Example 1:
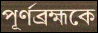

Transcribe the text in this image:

পূর্ণব্রহ্মকে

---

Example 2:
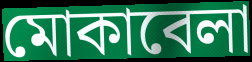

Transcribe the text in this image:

মোকাবেলা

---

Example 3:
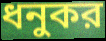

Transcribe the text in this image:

ধনুকর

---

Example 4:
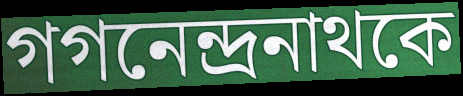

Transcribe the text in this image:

গগনেন্দ্রনাথকে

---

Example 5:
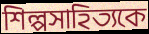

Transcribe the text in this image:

শিল্পসাহিত্যকে